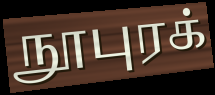
நூபுரக்